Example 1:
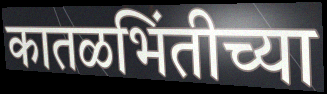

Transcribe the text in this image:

कातळभिंतीच्या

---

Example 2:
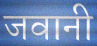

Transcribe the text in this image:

जवानी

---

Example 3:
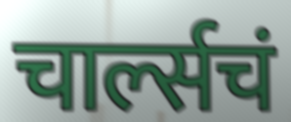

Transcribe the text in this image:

चार्ल्सचं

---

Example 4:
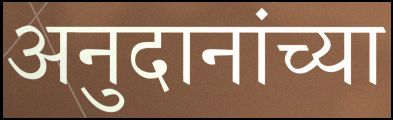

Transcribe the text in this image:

अनुदानांच्या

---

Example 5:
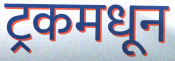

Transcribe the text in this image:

ट्रकमधून